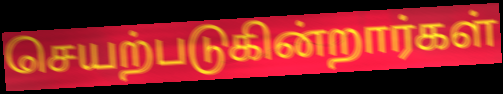
செயற்படுகின்றார்கள்